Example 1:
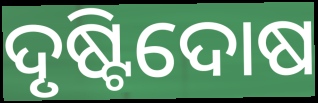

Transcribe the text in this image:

ଦୃଷ୍ଟିଦୋଷ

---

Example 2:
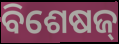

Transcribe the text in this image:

ବିଶେଷଜ୍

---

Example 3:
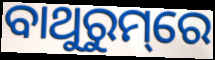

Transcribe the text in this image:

ବାଥୁରୁମ୍‌ରେ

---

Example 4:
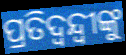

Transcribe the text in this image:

ପ୍ରତିଦ୍ଵନ୍ଦ୍ୱୀଙ୍କୁ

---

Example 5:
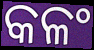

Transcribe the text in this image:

କଳଂ